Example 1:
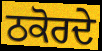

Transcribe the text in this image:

ਠਕੋਰਦੇ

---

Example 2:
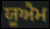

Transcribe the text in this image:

ਯੂਐਮ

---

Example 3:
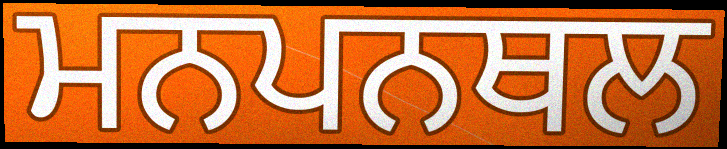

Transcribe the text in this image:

ਮਨਪਨਥਲ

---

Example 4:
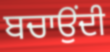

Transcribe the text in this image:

ਬਚਾਉਂਦੀ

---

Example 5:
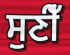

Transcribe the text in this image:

ਸੁਣੀਁ